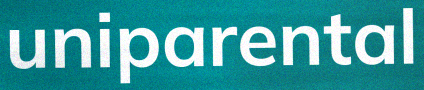
uniparental